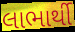
લાભાર્થી